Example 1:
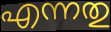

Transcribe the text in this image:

എന്നതു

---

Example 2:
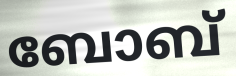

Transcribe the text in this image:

ബോബ്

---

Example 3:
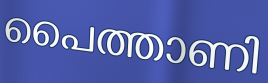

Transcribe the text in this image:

പൈത്താണി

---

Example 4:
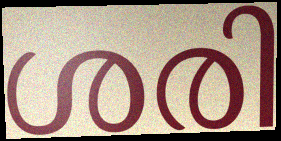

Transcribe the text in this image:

ശരി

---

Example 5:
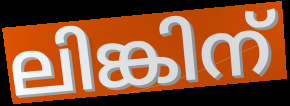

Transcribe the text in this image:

ലിങ്കിന്